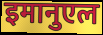
इमानुएल